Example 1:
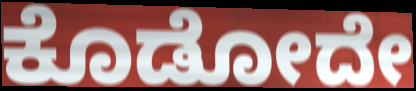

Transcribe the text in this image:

ಕೊಡೋದೇ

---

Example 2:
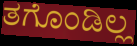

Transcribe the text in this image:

ತಗೊಂಡಿಲ್ಲ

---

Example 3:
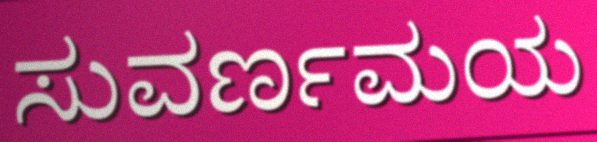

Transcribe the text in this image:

ಸುವರ್ಣಮಯ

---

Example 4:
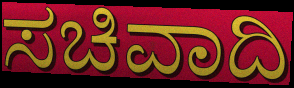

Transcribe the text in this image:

ಸಚಿವಾದಿ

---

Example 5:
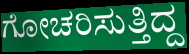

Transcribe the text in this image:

ಗೋಚರಿಸುತ್ತಿದ್ದ